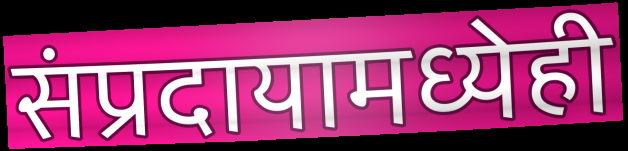
संप्रदायामध्येही